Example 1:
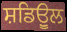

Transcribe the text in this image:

ਸ਼ਡਿਉੂਲ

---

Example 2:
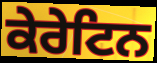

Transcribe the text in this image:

ਕੇਰੇਟਿਨ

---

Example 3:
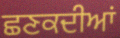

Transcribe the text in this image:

ਛਣਕਦੀਆਂ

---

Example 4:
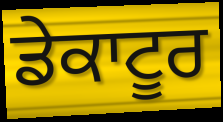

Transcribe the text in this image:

ਡੇਕਾਟੂਰ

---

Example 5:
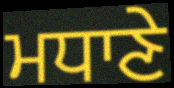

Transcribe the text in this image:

ਮਧਾਣੇ